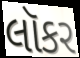
લૉકર